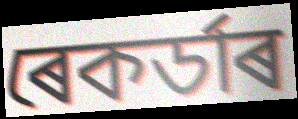
ৰেকৰ্ডাৰ